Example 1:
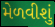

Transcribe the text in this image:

મેળવીશું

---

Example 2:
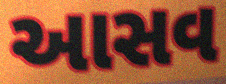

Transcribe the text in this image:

આસવ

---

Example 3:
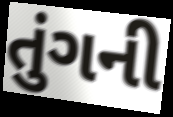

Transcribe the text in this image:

તુંગની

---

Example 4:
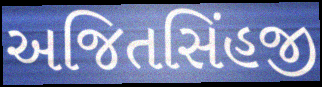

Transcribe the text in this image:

અજિતસિંહજી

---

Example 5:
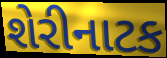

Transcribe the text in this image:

શેરીનાટક